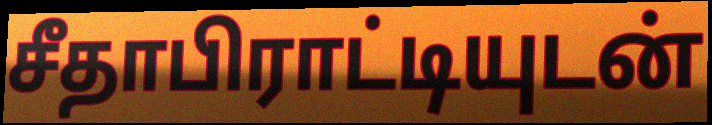
சீதாபிராட்டியுடன்